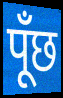
पूँछ